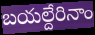
బయల్దేరినాం